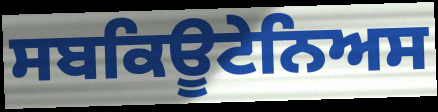
ਸਬਕਿਊਟੇਨਿਅਸ